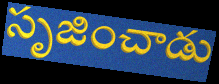
సృజించాడు